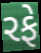
રફે